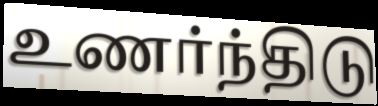
உணர்ந்திடு